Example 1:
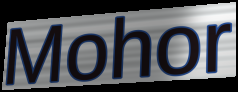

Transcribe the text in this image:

Mohor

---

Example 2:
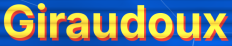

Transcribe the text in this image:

Giraudoux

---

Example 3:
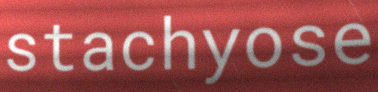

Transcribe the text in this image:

stachyose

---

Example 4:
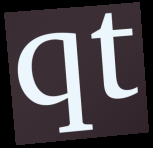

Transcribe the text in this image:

qt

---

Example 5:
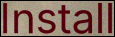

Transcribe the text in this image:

Install